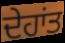
ਦੇਹਾਂਤ